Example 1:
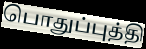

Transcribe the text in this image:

பொதுப்புத்தி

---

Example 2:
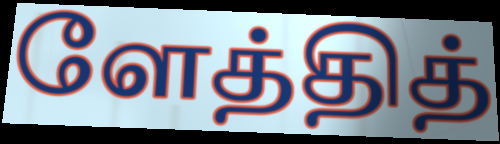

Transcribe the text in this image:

ளேத்தித்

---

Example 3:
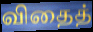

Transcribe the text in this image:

விதைத்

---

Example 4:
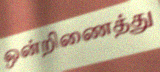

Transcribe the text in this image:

ஒன்றிணைத்து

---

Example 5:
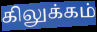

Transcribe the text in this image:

கிலுக்கம்